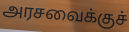
அரசவைக்குச்